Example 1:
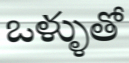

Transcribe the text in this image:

ఒళ్ళుతో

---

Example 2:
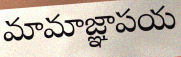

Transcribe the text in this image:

మామాజ్ఞాపయ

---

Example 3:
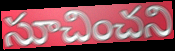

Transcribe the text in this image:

సూచించని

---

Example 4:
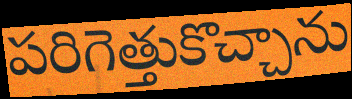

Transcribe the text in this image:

పరిగెత్తుకొచ్చాను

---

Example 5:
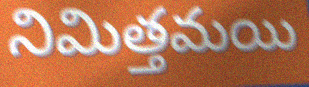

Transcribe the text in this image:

నిమిత్తమయి